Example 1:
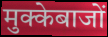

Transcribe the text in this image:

मुक्केबाजों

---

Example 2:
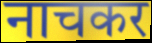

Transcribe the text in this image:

नाचकर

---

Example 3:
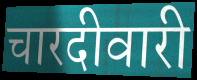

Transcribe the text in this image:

चारदीवारी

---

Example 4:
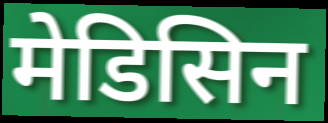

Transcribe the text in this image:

मेडिसिन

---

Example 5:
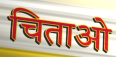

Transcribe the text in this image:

चिताओ